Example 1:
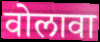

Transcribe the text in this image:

वोलावा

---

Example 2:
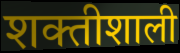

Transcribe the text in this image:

शक्‍तीशाली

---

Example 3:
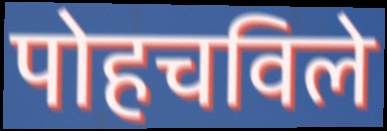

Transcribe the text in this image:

पोहचविले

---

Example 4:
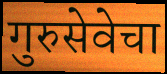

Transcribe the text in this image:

गुरुसेवेचा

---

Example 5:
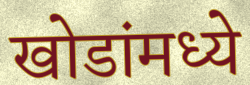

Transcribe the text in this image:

खोडांमध्ये